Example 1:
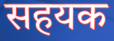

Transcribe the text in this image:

सहयक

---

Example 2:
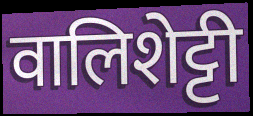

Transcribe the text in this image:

वालिशेट्टी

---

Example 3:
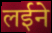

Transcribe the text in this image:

लईने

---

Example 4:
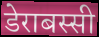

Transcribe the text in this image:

डेराबस्सी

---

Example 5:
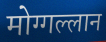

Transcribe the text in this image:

मोग्गल्लान